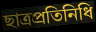
ছাত্রপ্রতিনিধি